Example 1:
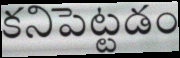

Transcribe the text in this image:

కనిపెట్టడం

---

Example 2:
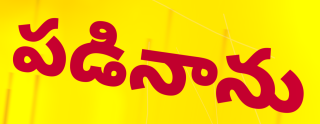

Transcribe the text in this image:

పడినాను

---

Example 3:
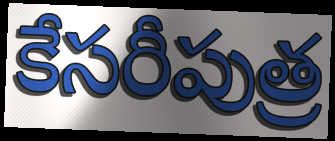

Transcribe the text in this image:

కేసరీపుత్ర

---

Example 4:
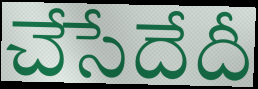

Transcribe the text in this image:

చేసేదేదీ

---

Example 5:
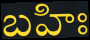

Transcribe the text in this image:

బహిః